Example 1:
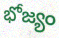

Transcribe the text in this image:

భోజ్యం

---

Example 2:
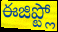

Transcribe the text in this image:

ఈజిప్ట్లో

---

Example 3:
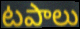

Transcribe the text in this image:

టపాలు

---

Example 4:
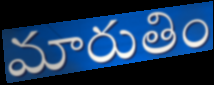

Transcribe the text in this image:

మారుతిం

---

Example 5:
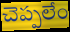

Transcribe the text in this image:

చెప్పలేం